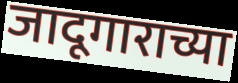
जादूगाराच्या